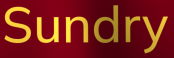
Sundry